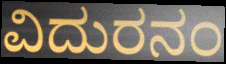
ವಿದುರನಂ